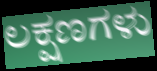
ಲಕ್ಷಣಗಳು